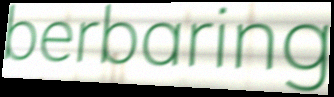
berbaring